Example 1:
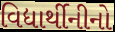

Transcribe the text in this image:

વિદ્યાર્થીનીનો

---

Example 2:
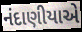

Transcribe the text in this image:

નંદાણીયાએ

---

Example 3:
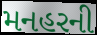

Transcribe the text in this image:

મનહરની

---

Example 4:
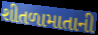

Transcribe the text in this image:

શીતળામાતાની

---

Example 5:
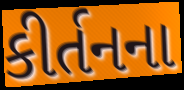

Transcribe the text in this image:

કીર્તનના